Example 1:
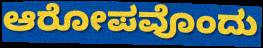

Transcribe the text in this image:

ಆರೋಪವೊಂದು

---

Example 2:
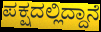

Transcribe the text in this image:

ಪಕ್ಷದಲ್ಲಿದ್ದಾನೆ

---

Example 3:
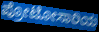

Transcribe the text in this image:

ಪ್ರೋಟೋಸಾರಿಯ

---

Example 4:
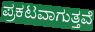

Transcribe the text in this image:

ಪ್ರಕಟವಾಗುತ್ತವೆ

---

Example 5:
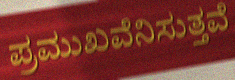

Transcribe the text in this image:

ಪ್ರಮುಖವೆನಿಸುತ್ತವೆ